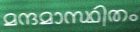
മന്ദമാസ്ഥിതം